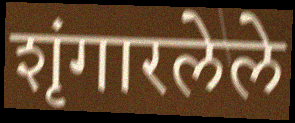
शृंगारलेले